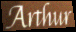
Arthur